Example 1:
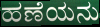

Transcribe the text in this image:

ಹಣೆಯನು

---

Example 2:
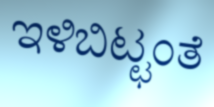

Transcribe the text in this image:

ಇಳಿಬಿಟ್ಟಂತೆ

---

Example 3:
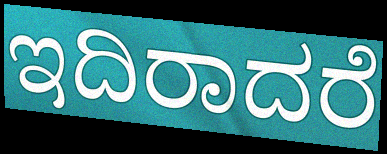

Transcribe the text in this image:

ಇದಿರಾದರೆ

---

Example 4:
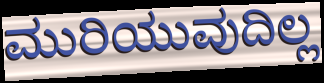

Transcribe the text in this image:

ಮುರಿಯುವುದಿಲ್ಲ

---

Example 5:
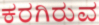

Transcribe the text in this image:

ಕರಗಿರುವ